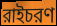
রাইচরণ